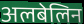
अलबेलिन